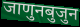
जाणुनबुजुन